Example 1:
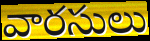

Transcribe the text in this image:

వారసులు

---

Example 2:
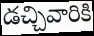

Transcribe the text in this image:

డచ్చివారికి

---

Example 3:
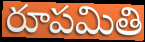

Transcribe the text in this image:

రూపమితి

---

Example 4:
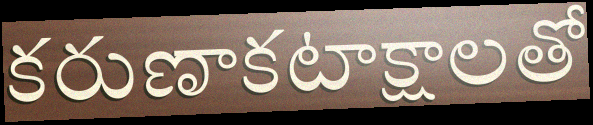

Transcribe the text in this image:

కరుణాకటాక్షాలతో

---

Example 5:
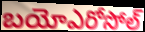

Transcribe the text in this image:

బయోఎరోసోల్